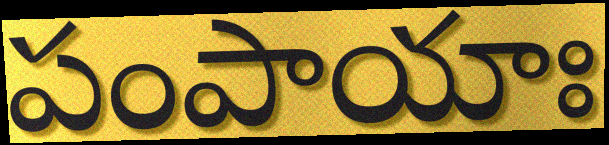
పంపాయాః